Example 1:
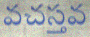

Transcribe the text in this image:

వచస్తవ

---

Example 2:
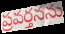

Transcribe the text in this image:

ప్రవర్తనను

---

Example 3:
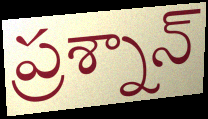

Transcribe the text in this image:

ప్రశ్నాన్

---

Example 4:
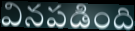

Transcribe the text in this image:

వినపడింది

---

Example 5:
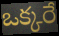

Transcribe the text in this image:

ఒక్కరే